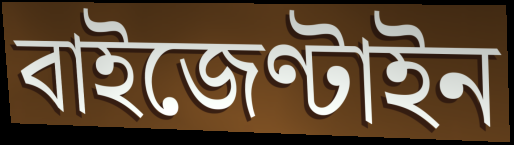
বাইজেণ্টাইন